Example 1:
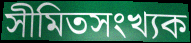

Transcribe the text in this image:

সীমিতসংখ্যক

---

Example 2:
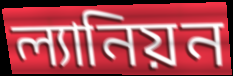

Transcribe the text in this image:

ল্যানিয়ন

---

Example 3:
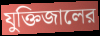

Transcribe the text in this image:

যুক্তিজালের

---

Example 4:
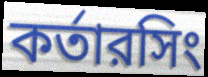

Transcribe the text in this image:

কর্তারসিং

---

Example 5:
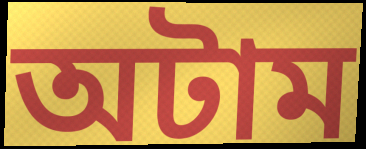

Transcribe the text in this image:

অটাম